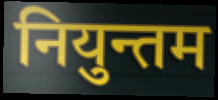
नियुन्तम